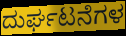
ದುರ್ಘಟನೆಗಳ